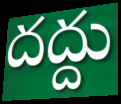
దద్దు